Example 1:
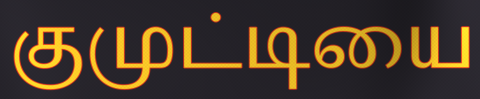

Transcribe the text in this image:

குமுட்டியை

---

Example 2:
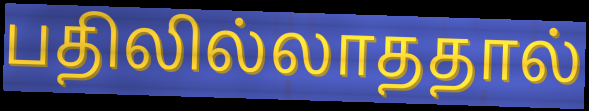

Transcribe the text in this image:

பதிலில்லாததால்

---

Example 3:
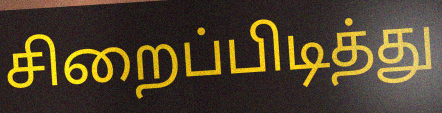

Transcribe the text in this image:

சிறைப்பிடித்து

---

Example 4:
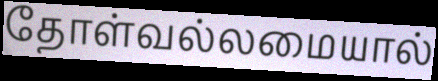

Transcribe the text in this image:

தோள்வல்லமையால்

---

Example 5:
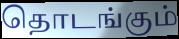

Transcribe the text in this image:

தொடங்கும்